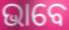
ଭାବେ